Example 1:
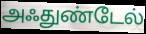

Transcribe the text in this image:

அஃதுண்டேல்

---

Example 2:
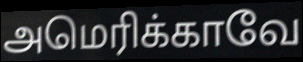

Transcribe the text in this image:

அமெரிக்காவே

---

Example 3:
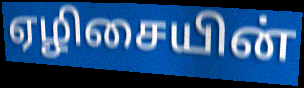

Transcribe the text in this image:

ஏழிசையின்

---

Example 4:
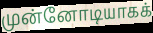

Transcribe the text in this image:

முன்னோடியாகக்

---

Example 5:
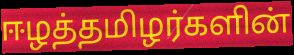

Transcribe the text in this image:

ஈழத்தமிழர்களின்